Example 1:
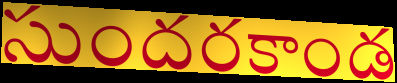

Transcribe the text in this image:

సుందరకాండ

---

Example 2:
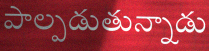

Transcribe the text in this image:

పాల్పడుతున్నాడు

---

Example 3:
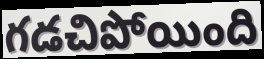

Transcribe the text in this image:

గడచిపోయింది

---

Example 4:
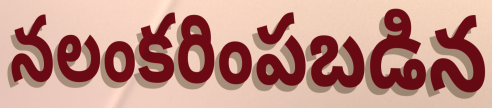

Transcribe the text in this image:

నలంకరింపబడిన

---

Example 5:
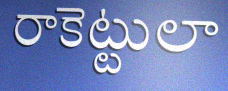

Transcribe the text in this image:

రాకెట్టులా